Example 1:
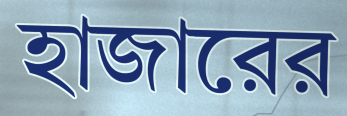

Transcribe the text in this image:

হাজারের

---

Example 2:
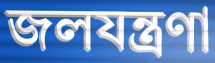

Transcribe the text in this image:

জলযন্ত্রণা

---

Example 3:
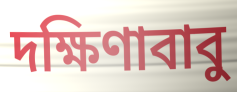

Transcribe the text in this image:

দক্ষিণাবাবু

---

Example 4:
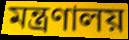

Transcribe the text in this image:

মন্ত্রণালয়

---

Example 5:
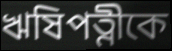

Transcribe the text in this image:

ঋষিপত্নীকে